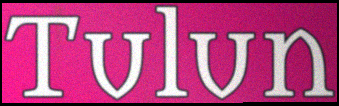
Tulun